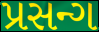
પ્રસન્ગ